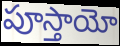
పూస్తాయో